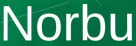
Norbu